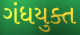
ગંધયુક્ત